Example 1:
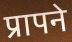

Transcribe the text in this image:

प्रापने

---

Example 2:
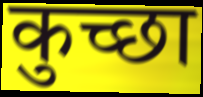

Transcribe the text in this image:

कुच्छा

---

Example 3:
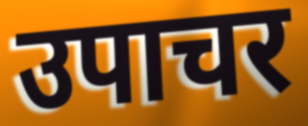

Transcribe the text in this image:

उपाचर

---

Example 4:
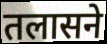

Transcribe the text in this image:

तलासने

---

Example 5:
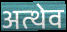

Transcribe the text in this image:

अत्थेव